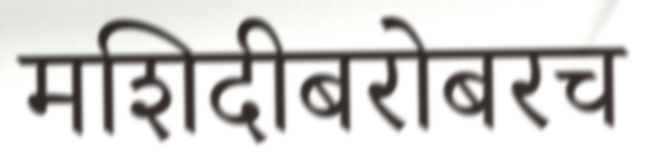
मशिदीबरोबरच